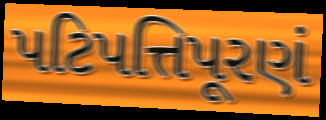
પટિપત્તિપૂરણં